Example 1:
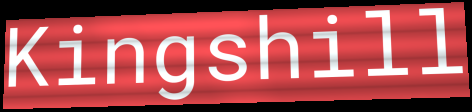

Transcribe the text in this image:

Kingshill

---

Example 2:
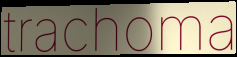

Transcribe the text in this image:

trachoma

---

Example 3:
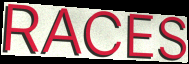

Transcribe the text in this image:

RACES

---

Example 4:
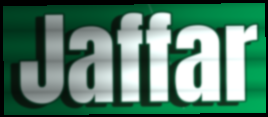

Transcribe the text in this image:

Jaffar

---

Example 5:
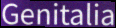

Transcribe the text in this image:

Genitalia